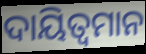
ଦାୟିତ୍ୱମାନ